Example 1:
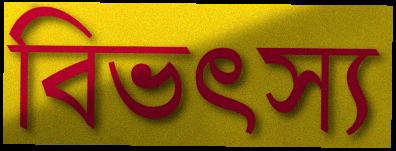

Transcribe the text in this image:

বিভৎস্য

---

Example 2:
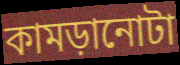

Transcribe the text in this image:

কামড়ানোটা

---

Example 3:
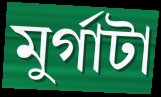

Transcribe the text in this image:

মুর্গাটা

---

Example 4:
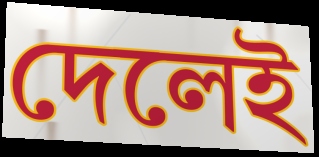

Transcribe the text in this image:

দেলেই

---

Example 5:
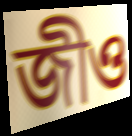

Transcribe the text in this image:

জীও